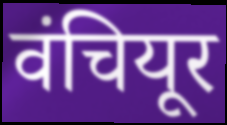
वंचियूर